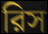
রিস